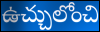
ఉచ్చులోంచి